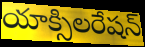
యాక్సిలరేషన్